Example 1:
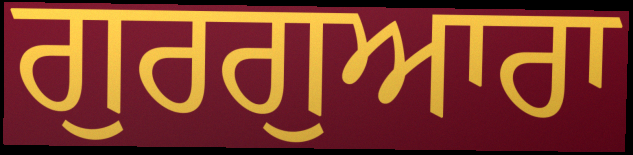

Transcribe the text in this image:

ਗੁਰਗੁਆਰਾ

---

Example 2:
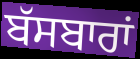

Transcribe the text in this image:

ਬੱਸਬਾਰਾਂ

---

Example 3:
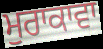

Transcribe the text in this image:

ਮੁਰਾਕਾਵਾ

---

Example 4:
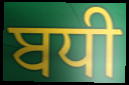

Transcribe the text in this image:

ਬਧੀ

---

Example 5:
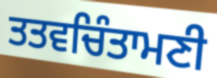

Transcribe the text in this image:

ਤਤਵਚਿੰਤਾਮਣੀ